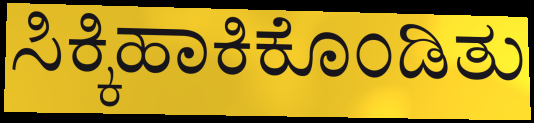
ಸಿಕ್ಕಿಹಾಕಿಕೊಂಡಿತು